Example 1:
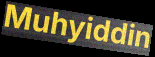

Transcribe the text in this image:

Muhyiddin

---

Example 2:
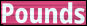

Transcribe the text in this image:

Pounds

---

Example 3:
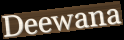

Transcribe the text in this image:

Deewana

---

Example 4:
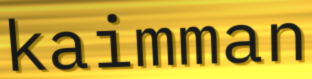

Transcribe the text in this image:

kaimman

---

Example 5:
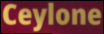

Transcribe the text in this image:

Ceylone